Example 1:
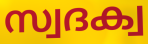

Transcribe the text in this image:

സ്വദക്വ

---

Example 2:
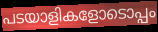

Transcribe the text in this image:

പടയാളികളോടൊപ്പം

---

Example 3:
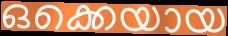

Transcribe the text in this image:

ഒക്കെയായ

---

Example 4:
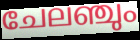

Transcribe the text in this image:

ചേലഞ്ചും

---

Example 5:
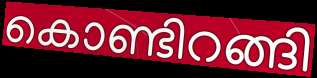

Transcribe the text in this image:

കൊണ്ടിറങ്ങി